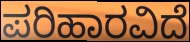
ಪರಿಹಾರವಿದೆ